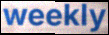
weekly